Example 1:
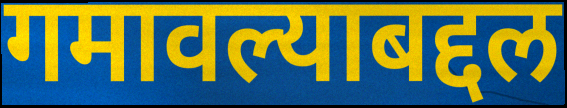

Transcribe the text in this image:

गमावल्याबद्दल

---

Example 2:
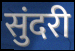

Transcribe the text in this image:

सुंदरी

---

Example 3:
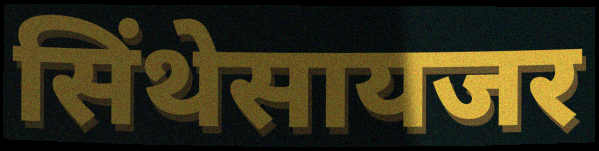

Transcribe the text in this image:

सिंथेसायजर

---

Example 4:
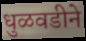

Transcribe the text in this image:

धुळवडीने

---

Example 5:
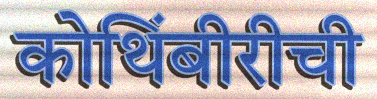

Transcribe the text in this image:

कोथिंबीरीची